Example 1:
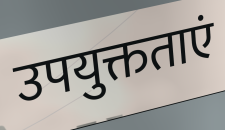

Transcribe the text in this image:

उपयुक्तताएं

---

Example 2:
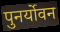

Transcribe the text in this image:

पुनर्योवन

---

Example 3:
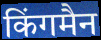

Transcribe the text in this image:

किंगमैन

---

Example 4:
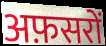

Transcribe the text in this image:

अफ़सरों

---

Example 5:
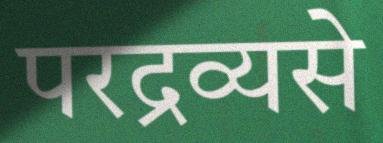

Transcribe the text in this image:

परद्रव्यसे